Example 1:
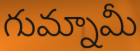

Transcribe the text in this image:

గుమ్నామీ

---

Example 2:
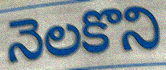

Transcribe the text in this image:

నెలకొని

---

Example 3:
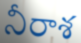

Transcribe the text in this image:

నీరాశ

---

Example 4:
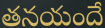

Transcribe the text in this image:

తనయందే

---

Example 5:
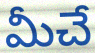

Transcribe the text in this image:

మీచే